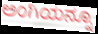
ಅಂಗಿಯನ್ನೂ